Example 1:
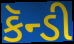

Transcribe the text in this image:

કૅન્ડી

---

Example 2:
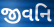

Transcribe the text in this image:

જીવનિ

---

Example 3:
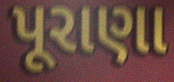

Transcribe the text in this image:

પૂરાણા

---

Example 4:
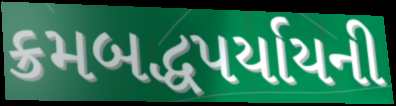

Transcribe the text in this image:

ક્રમબદ્ધપર્યાયની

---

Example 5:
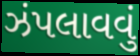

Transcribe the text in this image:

ઝંપલાવવું